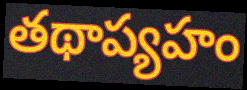
తథాప్యహం